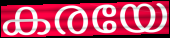
കരയേ